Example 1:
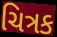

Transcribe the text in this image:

ચિત્રક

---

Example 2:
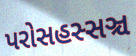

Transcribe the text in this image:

પરોસહસ્સઞ્ચ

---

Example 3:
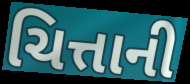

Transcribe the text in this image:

ચિત્તાની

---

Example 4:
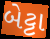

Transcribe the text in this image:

બેટ્ટા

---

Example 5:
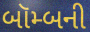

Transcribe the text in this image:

બૉમ્બની